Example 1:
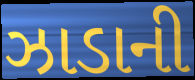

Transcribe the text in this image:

ઝાડાની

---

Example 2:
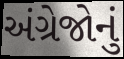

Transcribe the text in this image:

અંગ્રેજોનું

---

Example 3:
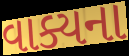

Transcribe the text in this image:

વાક્યના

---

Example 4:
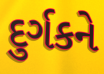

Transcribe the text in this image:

દુર્ગકને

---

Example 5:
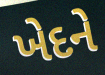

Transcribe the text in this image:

ખેદને